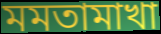
মমতামাখা